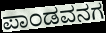
ಪಾಂಡವನಗ